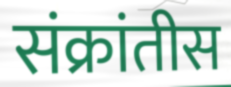
संक्रांतीस